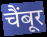
चैंबूर